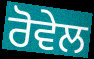
ਰੋਵੇਲ